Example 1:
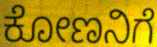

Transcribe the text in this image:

ಕೋಣನಿಗೆ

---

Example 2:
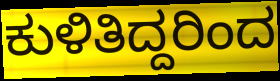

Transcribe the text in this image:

ಕುಳಿತಿದ್ದರಿಂದ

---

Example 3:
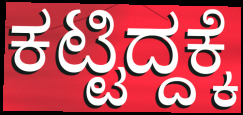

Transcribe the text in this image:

ಕಟ್ಟಿದ್ದಕ್ಕೆ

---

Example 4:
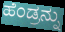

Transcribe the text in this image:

ಹೆಂಡ್ರನ್ನು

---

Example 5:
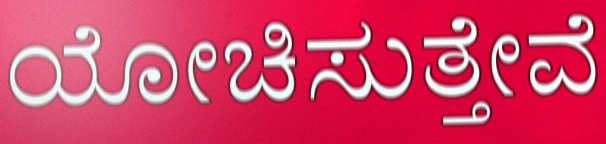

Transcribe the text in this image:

ಯೋಚಿಸುತ್ತೇವೆ